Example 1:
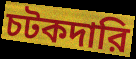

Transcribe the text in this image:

চটকদারি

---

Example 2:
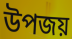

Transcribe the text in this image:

উপজয়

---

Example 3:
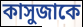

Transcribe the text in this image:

কাসুজাকে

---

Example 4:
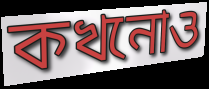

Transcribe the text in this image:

কখনোও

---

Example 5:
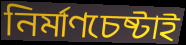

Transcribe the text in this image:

নির্মাণচেষ্টাই